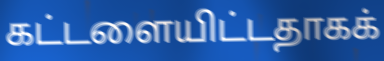
கட்டளையிட்டதாகக்